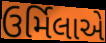
ઉર્મિલાએ